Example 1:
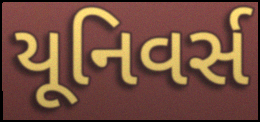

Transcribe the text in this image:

યૂનિવર્સ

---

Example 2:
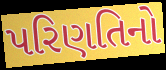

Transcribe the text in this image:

પરિણતિનો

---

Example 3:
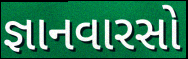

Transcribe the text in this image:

જ્ઞાનવારસો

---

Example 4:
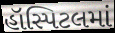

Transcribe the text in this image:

હૉસ્પિટલમાં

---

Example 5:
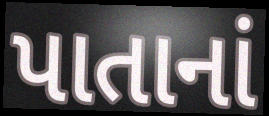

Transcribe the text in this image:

પાતાનાં